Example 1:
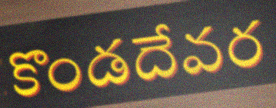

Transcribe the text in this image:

కొండదేవర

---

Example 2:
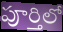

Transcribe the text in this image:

పూర్తిలో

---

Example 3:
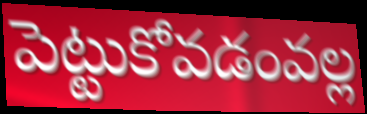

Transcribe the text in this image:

పెట్టుకోవడంవల్ల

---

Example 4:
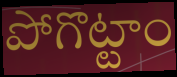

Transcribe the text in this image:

పోగొట్టాం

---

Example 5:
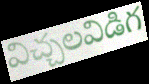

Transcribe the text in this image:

విచ్చలవిడిగ